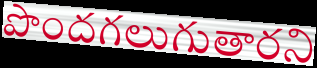
పొందగలుగుతారని